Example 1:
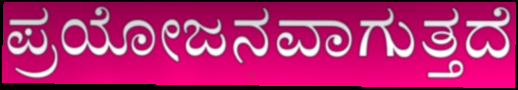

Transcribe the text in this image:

ಪ್ರಯೋಜನವಾಗುತ್ತದೆ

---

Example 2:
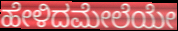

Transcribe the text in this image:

ಹೇಳಿದಮೇಲೆಯೇ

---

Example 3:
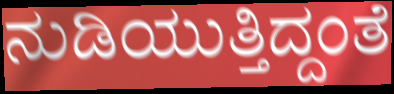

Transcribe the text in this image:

ನುಡಿಯುತ್ತಿದ್ದಂತೆ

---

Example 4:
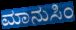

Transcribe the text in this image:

ಮಾನುಸಿಂ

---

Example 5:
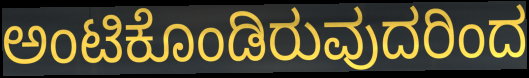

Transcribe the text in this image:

ಅಂಟಿಕೊಂಡಿರುವುದರಿಂದ